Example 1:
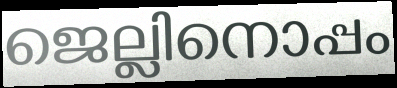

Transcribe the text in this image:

ജെല്ലിനൊപ്പം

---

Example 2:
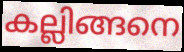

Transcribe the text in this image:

കല്ലിങ്ങനെ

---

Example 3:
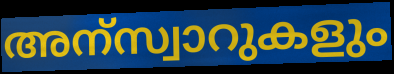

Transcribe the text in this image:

അന്സ്വാറുകളും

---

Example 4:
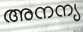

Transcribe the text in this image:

അനന്യ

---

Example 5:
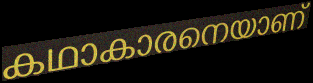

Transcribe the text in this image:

കഥാകാരനെയാണ്